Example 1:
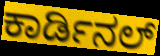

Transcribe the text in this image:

ಕಾರ್ಡಿನಲ್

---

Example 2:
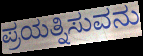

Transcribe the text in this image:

ಪ್ರಯತ್ನಿಸುವನು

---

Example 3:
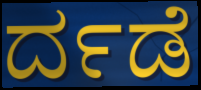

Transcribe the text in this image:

ರ್ದಡೆ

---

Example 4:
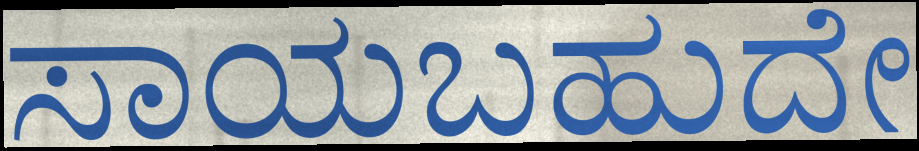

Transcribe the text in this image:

ಸಾಯಬಹುದೇ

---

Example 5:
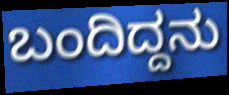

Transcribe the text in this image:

ಬಂದಿದ್ದನು